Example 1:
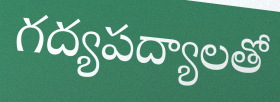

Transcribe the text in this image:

గద్యపద్యాలతో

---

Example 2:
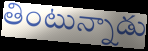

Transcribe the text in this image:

తింటున్నాడు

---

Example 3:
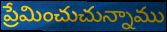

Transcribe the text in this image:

ప్రేమించుచున్నాము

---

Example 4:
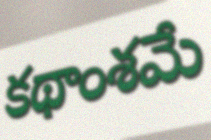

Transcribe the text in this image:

కథాంశమే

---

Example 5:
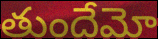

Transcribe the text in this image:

తుందేమో